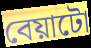
বেয়াটো